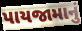
પાયજામાનું